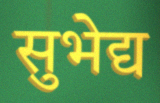
सुभेद्य